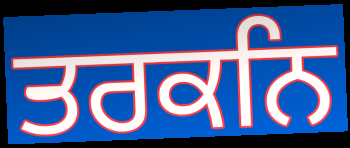
ਤਰਕਨਿ